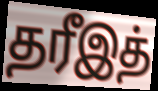
தரீஇத்